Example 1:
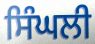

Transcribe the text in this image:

ਸਿੰਘਲੀ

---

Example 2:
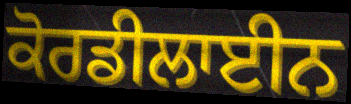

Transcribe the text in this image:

ਕੋਰਡੀਲਾਈਨ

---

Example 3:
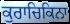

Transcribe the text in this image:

ਕੁਰਾਚਿਕਿਨਾ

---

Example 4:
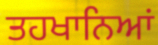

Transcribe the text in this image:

ਤਹਖਾਨਿਆਂ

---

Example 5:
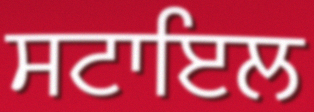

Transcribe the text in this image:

ਸਟਾਇਲ